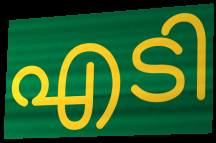
എടി